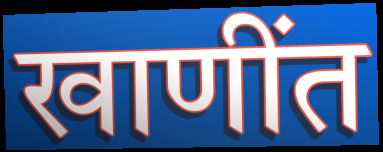
खाणींत